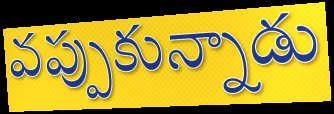
వప్పుకున్నాడు